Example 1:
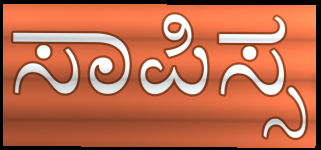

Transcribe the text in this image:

ಸಾಪಿಸ್ಸ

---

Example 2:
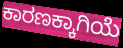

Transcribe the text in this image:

ಕಾರಣಕ್ಕಾಗಿಯೆ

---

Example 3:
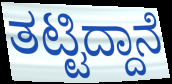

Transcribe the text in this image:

ತಟ್ಟಿದ್ದಾನೆ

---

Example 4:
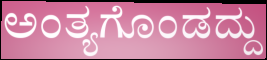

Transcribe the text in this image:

ಅಂತ್ಯಗೊಂಡದ್ದು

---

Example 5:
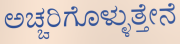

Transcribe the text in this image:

ಅಚ್ಚರಿಗೊಳ್ಳುತ್ತೇನೆ